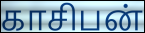
காசிபன்